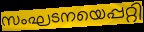
സംഘടനയെപ്പറ്റി